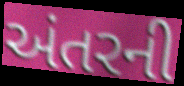
અંતરની